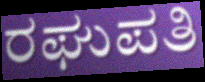
ರಘುಪತಿ